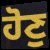
ਹੋਣੁ